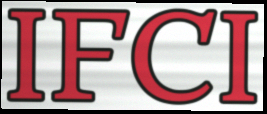
IFCI